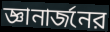
জ্ঞানার্জনের